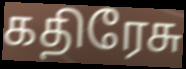
கதிரேசு